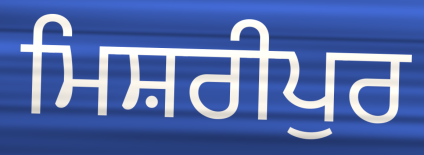
ਮਿਸ਼ਰੀਪੁਰ